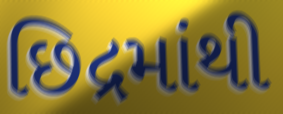
છિદ્રમાંથી